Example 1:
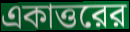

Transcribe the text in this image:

একাত্তরের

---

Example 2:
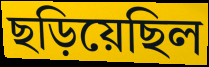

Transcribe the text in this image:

ছড়িয়েছিল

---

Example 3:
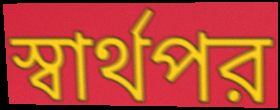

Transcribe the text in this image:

স্বার্থপর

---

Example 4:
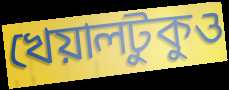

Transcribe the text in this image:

খেয়ালটুকুও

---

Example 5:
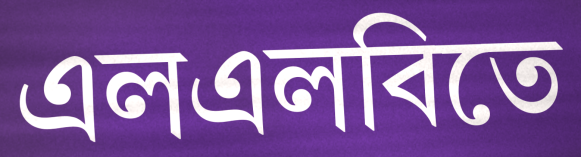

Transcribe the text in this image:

এলএলবিতে